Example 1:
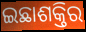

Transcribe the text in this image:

ଇଛାଶକ୍ତିର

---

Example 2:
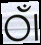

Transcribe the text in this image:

ଠାଁ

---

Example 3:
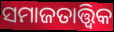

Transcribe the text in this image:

ସମାଜତାତ୍ତ୍ୱିକ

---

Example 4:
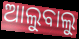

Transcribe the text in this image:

ଆଲୁବାଲୁ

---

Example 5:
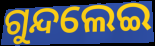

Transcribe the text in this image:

ଗୁନ୍ଦଲେଇ